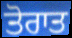
ਤੋਰਾਤ